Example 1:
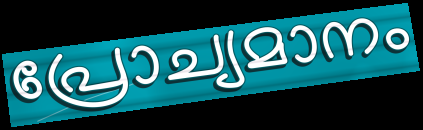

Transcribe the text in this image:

പ്രോച്യമാനം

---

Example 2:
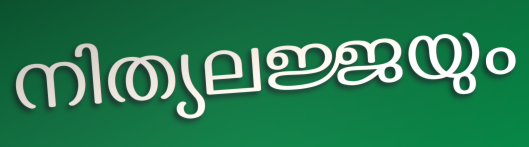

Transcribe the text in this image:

നിത്യലജ്ജയും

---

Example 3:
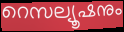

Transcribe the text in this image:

റെസല്യൂഷനും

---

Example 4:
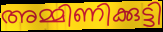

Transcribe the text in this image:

അമ്മിണിക്കുട്ടി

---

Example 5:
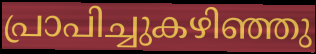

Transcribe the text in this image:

പ്രാപിച്ചുകഴിഞ്ഞു